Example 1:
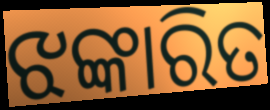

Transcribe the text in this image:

ଝଙ୍କାରିତ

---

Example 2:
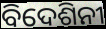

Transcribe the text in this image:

ବିଦେଶିନୀ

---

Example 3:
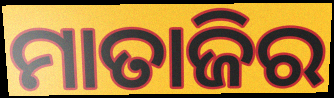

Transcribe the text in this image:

ମାତାଜିର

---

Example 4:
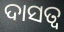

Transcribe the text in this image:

ଦାସତ୍ୱ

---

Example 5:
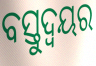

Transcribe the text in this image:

ବସ୍ତୁଦ୍ୱୟର